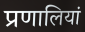
प्रणालियां